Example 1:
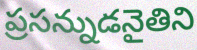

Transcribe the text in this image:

ప్రసన్నుడనైతిని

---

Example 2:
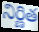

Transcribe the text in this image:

నిర్ణిత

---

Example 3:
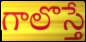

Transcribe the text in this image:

గాలొస్తే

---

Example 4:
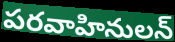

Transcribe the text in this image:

పరవాహినులన్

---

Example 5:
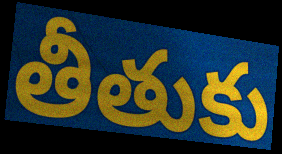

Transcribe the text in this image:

తీతుకు